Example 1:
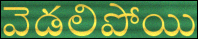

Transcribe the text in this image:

వెడలిపోయి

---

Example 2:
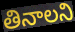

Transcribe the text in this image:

తినాలని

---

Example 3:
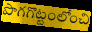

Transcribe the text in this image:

పొగగొట్టంలోంచి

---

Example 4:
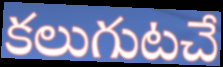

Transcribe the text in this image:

కలుగుటచే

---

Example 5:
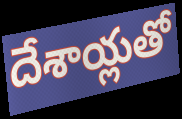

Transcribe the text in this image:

దేశాయ్లతో